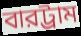
বারট্রাম